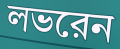
লভরেন